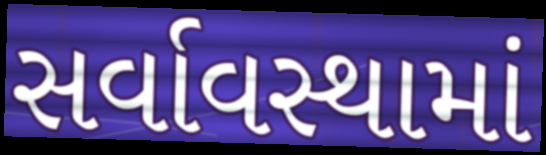
સર્વાવસ્થામાં